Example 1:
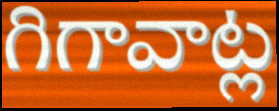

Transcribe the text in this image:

గిగావాట్ల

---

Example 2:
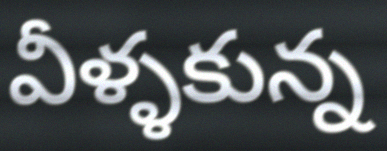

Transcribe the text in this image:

వీళ్ళకున్న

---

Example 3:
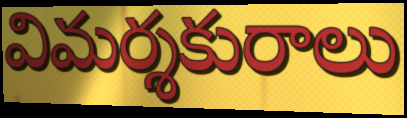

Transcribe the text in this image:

విమర్శకురాలు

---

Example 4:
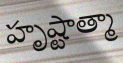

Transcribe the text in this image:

హృష్టాత్మా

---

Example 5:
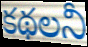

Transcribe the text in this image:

కథలనీ